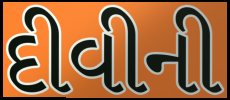
દીવીની